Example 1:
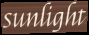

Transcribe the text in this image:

sunlight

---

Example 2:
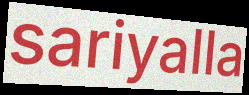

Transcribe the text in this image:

sariyalla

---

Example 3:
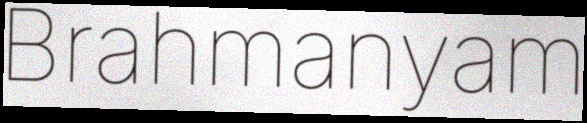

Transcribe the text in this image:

Brahmanyam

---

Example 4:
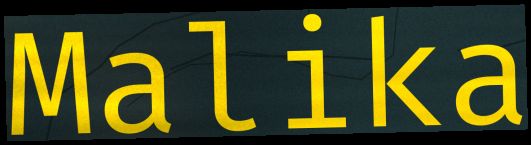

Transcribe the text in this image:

Malika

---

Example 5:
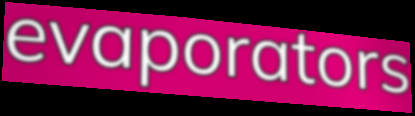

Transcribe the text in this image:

evaporators